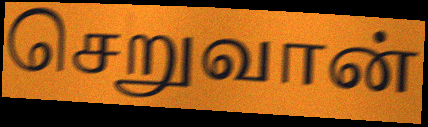
செறுவான்